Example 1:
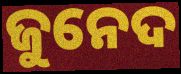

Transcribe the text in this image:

ଜୁନେଦ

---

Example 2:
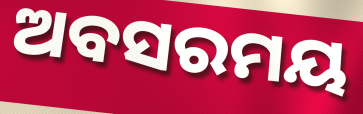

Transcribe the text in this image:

ଅବସରମୟ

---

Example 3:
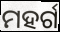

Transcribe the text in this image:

ମହର୍ଗ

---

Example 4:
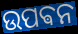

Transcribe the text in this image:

ଉପଵନ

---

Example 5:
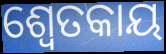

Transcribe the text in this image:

ଶ୍ବେତକାୟ